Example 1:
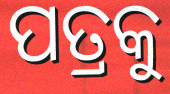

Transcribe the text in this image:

ପତ୍ରକୁ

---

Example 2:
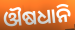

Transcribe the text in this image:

ଔଷଧାନି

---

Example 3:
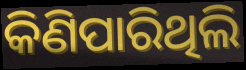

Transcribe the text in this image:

କିଣିପାରିଥିଲି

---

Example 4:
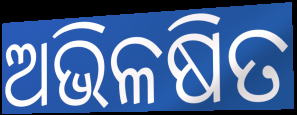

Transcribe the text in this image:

ଅଭିଳଷିତ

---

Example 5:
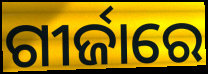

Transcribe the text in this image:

ଗୀର୍ଜାରେ